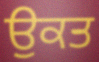
ਉੁਕਤ